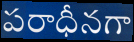
పరాధీనగా